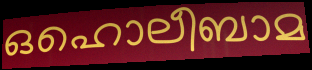
ഒഹൊലീബാമ